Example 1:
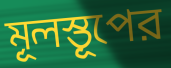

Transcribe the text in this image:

মূলস্তূপের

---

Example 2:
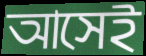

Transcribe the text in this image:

আসেই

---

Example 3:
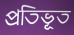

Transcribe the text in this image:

প্রতিভূত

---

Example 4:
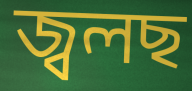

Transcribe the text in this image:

জ্বলছ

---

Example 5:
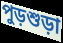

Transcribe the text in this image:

পুড়শুড়া